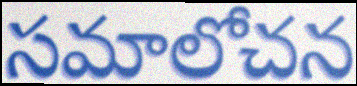
సమాలోచన